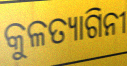
କୁଳତ୍ୟାଗିନୀ